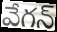
వేగన్